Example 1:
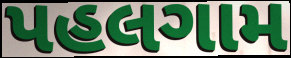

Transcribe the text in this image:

પહલગામ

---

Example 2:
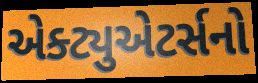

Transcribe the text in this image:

એક્ટ્યુએટર્સનો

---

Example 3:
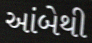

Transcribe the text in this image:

આંબેથી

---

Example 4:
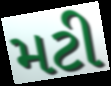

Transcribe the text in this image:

મટી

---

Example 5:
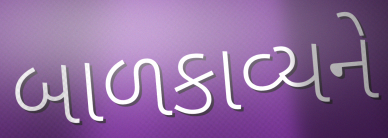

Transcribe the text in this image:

બાળકાવ્યને